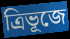
ত্ৰিভূজে